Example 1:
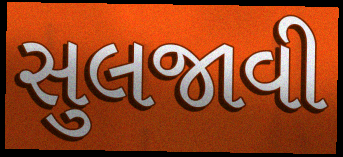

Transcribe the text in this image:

સુલજાવી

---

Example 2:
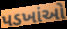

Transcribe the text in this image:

પડખાંઓ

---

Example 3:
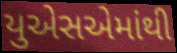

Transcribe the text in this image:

યુએસએમાંથી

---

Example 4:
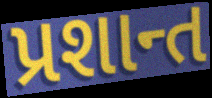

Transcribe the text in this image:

પ્રશાન્ત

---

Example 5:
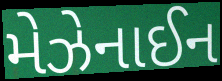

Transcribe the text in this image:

મેઝેનાઈન